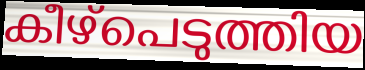
കീഴ്പെടുത്തിയ